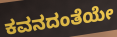
ಕವನದಂತೆಯೇ